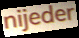
nijeder